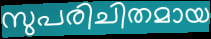
സുപരിചിതമായ